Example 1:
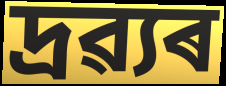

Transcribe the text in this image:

দ্ৰৱ্যৰ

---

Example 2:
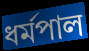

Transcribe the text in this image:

ধৰ্মপাল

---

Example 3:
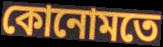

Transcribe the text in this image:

কোনোমতে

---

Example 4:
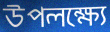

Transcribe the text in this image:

উপলক্ষ্যে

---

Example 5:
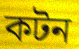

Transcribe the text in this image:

কটন